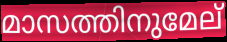
മാസത്തിനുമേല്